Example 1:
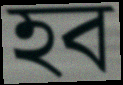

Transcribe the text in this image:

হব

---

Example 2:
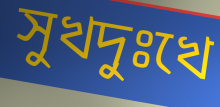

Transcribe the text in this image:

সুখদুঃখে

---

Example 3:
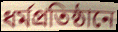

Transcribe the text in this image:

ধর্মপ্রতিষ্ঠানে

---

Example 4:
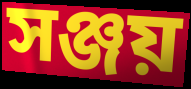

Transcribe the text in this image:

সঞ্জয়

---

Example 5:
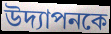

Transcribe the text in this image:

উদ্যাপনকে